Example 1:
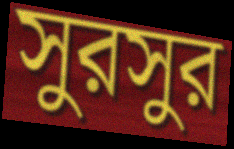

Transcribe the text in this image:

সুরসুর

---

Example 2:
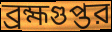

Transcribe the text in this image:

ব্রহ্মগুপ্তর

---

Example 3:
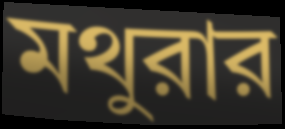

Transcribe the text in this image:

মথুরার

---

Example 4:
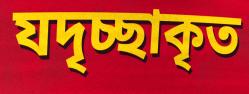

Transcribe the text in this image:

যদৃচ্ছাকৃত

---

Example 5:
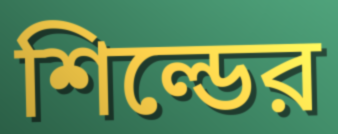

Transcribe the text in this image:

শিল্ডের